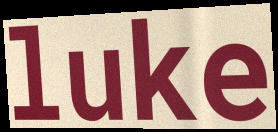
luke